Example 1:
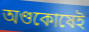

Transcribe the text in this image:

অণ্ডকোষেই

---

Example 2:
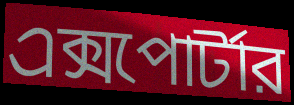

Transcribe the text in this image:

এক্সপোর্টার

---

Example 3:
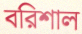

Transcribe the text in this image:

বরিশাল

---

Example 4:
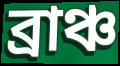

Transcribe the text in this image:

ব্রাঞ্চ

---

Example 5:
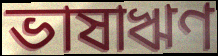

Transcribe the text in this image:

ভাষাঋণ